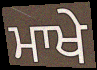
ਮਾਖੇ